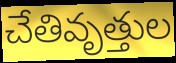
చేతివృత్తుల